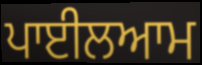
ਪਾਈਲਆਮ